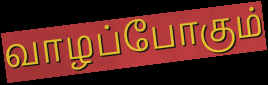
வாழப்போகும்